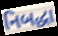
નિબદ્ધા